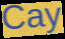
Cay